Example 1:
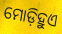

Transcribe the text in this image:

ମୋଡ଼ିହୁଏ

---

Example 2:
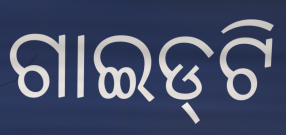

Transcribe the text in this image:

ଗାଇଡ୍‌ଟି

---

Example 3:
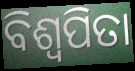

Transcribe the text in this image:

ବିଶ୍ୱପିତା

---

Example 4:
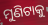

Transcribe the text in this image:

ମୁଣିଟାକୁ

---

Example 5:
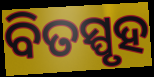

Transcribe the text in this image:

ବିତସ୍ପୃହ